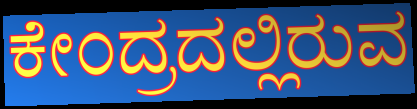
ಕೇಂದ್ರದಲ್ಲಿರುವ